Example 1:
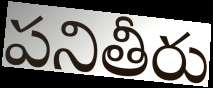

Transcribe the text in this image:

పనితీరు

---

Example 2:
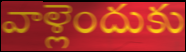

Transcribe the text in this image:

వాళ్లెందుకు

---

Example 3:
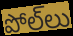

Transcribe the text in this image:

పోల్‌లు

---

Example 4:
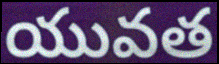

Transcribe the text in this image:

యువత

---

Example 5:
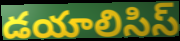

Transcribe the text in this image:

డయాలిసిస్